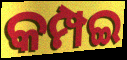
କମ୍ପଇ